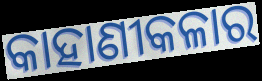
କାହାଣୀକଳାର